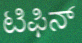
ಟಿಫಿನ್